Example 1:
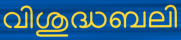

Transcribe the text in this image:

വിശുദ്ധബലി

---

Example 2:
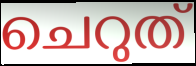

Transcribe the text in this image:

ചെറുത്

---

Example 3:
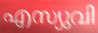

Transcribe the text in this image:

എസ്യുവി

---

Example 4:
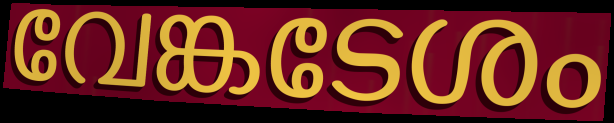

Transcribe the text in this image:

വേങ്കടേശം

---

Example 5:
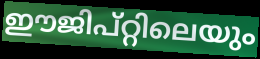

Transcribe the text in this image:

ഈജിപ്റ്റിലെയും